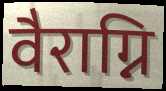
वैराग्नि